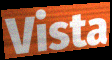
Vista